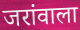
जरांवाला